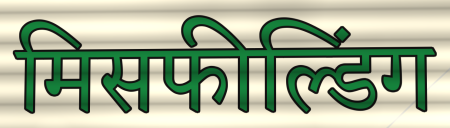
मिसफील्डिंग